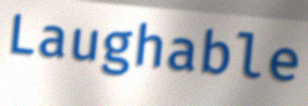
Laughable